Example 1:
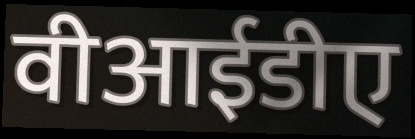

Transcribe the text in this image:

वीआईडीए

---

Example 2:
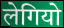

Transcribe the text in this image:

लेगियो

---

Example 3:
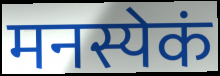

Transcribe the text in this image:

मनस्येकं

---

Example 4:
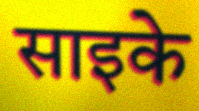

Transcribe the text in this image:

साइके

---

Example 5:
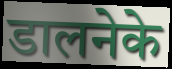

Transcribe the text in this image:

डालनेके